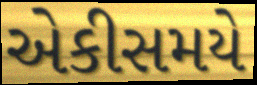
એકીસમયે